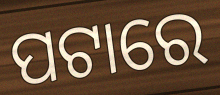
ପଟାରେ